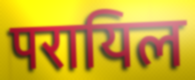
परायिल